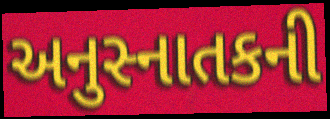
અનુસ્નાતકની